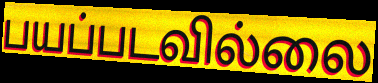
பயப்படவில்லை